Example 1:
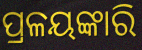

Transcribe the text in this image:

ପ୍ରଳୟଙ୍କାରି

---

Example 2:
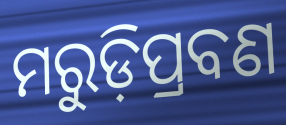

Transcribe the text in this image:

ମରୁଡ଼ିପ୍ରବଣ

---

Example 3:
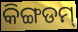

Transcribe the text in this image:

କିଙ୍ଗଡମ୍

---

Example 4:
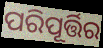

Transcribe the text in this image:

ପରିପୂର୍ତ୍ତିର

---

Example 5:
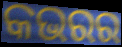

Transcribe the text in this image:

କଭରର